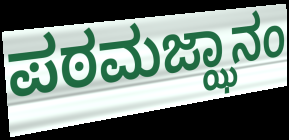
ಪಠಮಜ್ಝಾನಂ